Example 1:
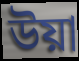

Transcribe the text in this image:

উয়া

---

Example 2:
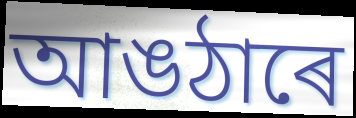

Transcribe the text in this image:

আঙঠাৰে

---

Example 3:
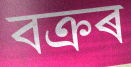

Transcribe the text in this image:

বক্ৰৰ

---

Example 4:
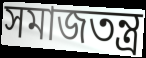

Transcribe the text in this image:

সমাজতন্ত্ৰ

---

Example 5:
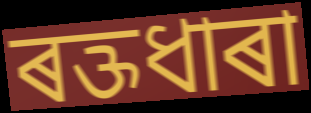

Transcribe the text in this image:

ৰক্তধাৰা